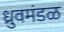
ध्रुवमंडळ